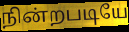
நின்றபடியே